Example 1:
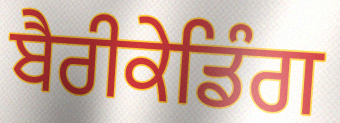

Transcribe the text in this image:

ਬੈਰੀਕੇਡਿੰਗ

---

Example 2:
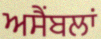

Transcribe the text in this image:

ਅਸੈਂਬਲਾਂ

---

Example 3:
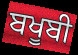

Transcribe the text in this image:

ਬਖੂਬੀ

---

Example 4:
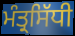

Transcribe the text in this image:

ਮੰਤ੍ਰਸਿੱਧੀ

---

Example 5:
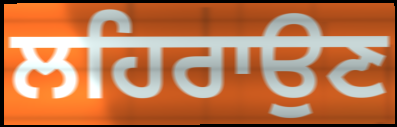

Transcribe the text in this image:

ਲਹਿਰਾਉਣ